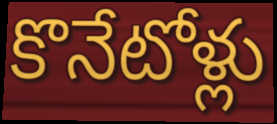
కొనేటోళ్లు